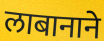
लाबानाने